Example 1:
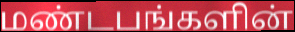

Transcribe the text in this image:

மண்டபங்களின்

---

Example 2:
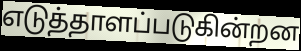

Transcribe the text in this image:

எடுத்தாளப்படுகின்றன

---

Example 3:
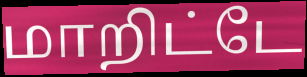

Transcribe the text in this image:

மாறிட்டே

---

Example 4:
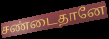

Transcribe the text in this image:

சண்டைதானே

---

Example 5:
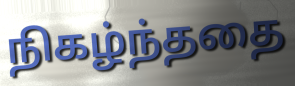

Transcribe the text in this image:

நிகழ்ந்ததை